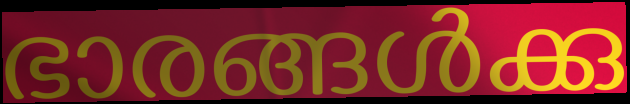
ഭാരങ്ങൾക്കു